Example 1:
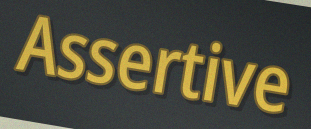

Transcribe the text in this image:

Assertive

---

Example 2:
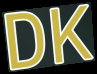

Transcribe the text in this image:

DK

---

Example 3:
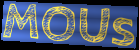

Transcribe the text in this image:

MOUs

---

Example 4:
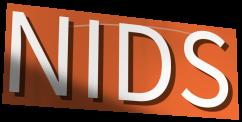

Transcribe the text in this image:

NIDS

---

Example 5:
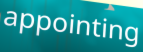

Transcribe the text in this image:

appointing